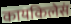
कायकिलेसं